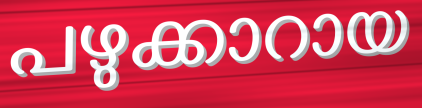
പഴുക്കാറായ